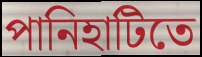
পানিহাটিতে